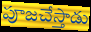
పూజచేస్తాడు